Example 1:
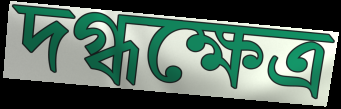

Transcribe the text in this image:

দগ্ধক্ষেত্র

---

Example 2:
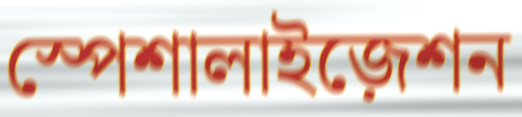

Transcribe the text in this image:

স্পেশালাইজ়েশন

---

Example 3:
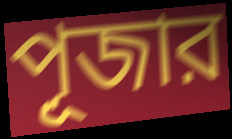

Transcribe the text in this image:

পূজার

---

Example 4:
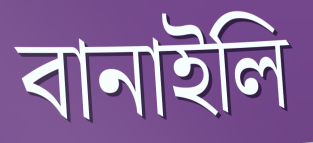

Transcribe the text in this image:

বানাইলি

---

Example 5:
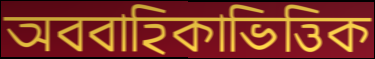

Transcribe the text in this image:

অববাহিকাভিত্তিক